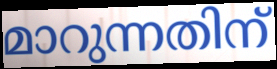
മാറുന്നതിന്